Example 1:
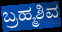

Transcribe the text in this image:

ಬ್ರಹ್ಮಶಿವ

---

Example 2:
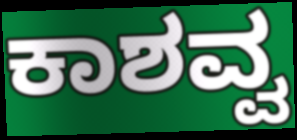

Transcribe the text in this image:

ಕಾಶವ್ವ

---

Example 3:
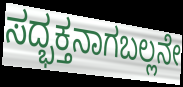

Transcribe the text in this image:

ಸದ್ಭಕ್ತನಾಗಬಲ್ಲನೇ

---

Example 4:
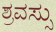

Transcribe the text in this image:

ಶ್ರವಸ್ಸು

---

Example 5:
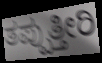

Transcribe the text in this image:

ತಪ್ಪುತ್ತೀರಿ